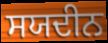
ਸਯਦੀਨ